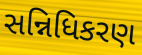
સન્નિધિકરણ